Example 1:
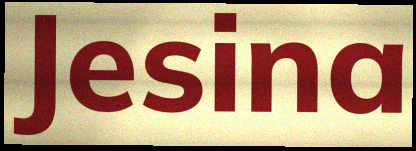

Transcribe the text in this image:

Jesina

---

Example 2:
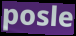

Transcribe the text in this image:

posle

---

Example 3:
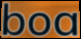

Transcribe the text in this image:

boa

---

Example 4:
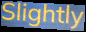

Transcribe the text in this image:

Slightly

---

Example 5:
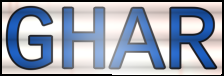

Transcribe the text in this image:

GHAR